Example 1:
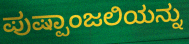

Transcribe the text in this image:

ಪುಷ್ಪಾಂಜಲಿಯನ್ನು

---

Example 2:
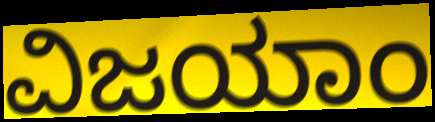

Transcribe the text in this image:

ವಿಜಯಾಂ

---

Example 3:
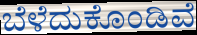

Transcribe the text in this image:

ಬೆಳೆದುಕೊಂಡಿವೆ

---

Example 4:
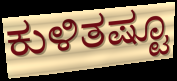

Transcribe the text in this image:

ಕುಳಿತಷ್ಟೂ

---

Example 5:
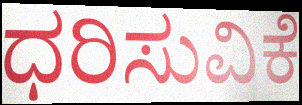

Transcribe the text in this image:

ಧರಿಸುವಿಕೆ